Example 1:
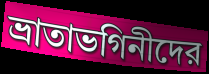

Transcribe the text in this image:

ভ্রাতাভগিনীদের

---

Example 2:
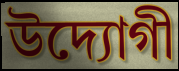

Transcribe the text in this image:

উদ্যোগী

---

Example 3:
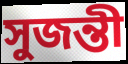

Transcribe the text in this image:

সুজন্তী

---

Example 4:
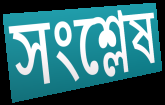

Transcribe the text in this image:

সংশ্লেষ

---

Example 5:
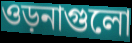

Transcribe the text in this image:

ওড়নাগুলো